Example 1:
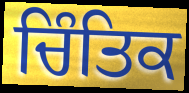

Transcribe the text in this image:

ਚਿੰਤਿਕ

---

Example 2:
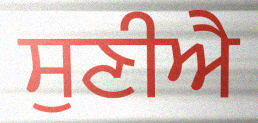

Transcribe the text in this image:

ਸੁਣੀਐ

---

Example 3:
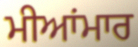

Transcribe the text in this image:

ਮੀਆਂਮਾਰ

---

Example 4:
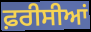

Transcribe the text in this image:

ਫ਼ਰੀਸੀਆਂ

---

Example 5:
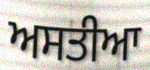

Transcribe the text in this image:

ਅਸਤੀਆ